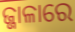
ଜ୍ଜାଳାରେ